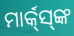
ମାର୍କ୍‌ସ୍‌ଙ୍କ